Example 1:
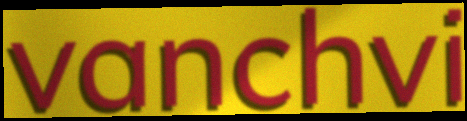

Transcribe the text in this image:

vanchvi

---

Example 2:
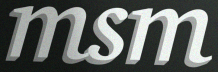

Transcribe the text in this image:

msm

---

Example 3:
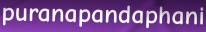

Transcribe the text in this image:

puranapandaphani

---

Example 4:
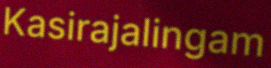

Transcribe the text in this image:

Kasirajalingam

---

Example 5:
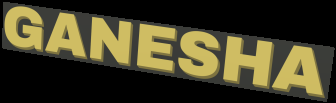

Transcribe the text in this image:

GANESHA